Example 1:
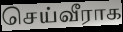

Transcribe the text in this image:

செய்வீராக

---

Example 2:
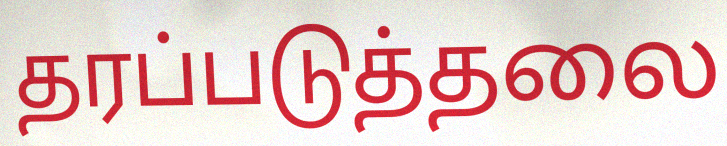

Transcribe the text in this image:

தரப்படுத்தலை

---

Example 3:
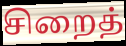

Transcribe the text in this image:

சிறைத்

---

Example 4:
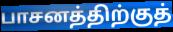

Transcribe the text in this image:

பாசனத்திற்குத்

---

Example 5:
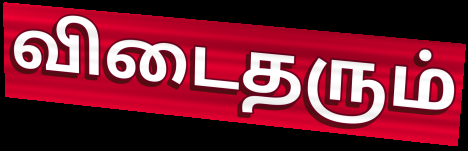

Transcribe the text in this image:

விடைதரும்